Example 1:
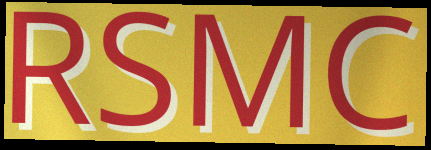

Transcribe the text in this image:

RSMC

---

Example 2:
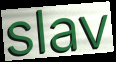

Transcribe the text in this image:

slav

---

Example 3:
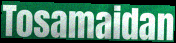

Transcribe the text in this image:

Tosamaidan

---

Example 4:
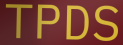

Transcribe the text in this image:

TPDS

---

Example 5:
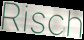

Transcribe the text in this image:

Risch